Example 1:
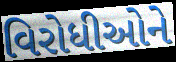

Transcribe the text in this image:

વિરોધીઓને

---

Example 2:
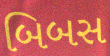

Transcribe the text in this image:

બિબસ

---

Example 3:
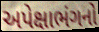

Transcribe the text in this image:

અપેક્ષાભંગનો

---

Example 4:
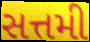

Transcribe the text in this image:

સત્તમી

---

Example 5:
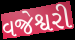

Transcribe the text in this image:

વજ્રેશ્વરી